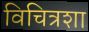
विचित्रशा